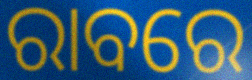
ରାବରେ